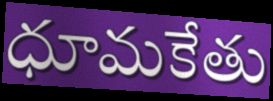
ధూమకేతు